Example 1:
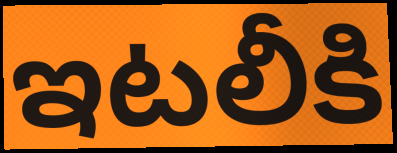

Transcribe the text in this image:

ఇటలీకి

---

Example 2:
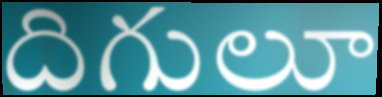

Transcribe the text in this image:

దిగులూ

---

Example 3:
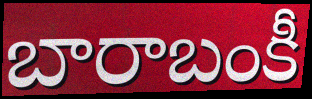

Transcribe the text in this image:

బారాబంకీ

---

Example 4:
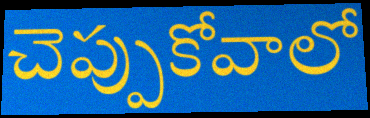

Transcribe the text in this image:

చెప్పుకోవాలో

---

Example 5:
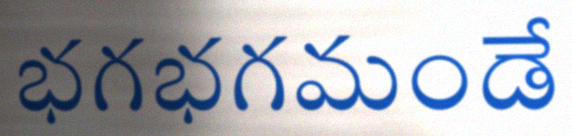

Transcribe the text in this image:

భగభగమండే